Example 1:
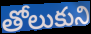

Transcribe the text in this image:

తోలుకుని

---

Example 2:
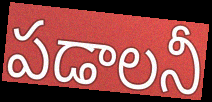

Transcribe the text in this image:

పడాలనీ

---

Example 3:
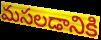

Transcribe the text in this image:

మసలడానికి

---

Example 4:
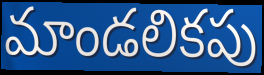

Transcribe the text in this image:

మాండలికపు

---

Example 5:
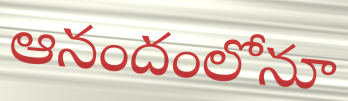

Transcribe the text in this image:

ఆనందంలోనూ